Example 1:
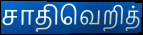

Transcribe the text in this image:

சாதிவெறித்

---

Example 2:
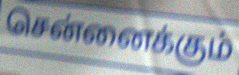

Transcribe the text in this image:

சென்னைக்கும்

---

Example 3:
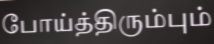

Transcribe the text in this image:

போய்த்திரும்பும்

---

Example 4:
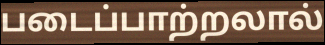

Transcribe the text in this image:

படைப்பாற்றலால்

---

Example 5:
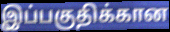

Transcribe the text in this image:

இப்பகுதிக்கான